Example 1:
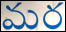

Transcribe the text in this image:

మర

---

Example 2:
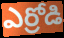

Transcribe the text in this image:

ఎర్రోడి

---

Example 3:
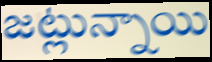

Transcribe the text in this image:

జట్లున్నాయి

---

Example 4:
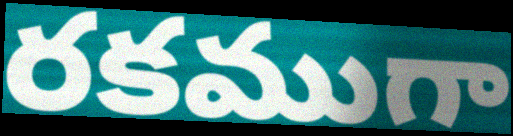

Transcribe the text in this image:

రకముగా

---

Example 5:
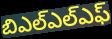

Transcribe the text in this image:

బిఎల్ఎల్ఎఫ్